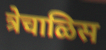
त्रेचाळिस